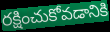
రక్షించుకోవడానికి